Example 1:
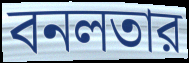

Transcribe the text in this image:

বনলতার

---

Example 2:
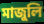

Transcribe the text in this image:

মাজুলি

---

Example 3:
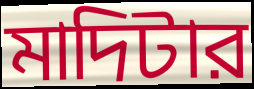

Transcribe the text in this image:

মাদিটার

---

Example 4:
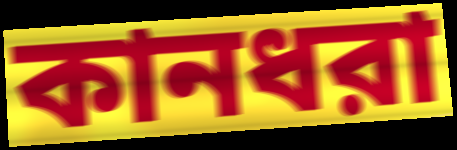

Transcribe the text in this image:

কানধরা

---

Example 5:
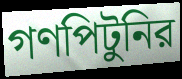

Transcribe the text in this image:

গণপিটুনির